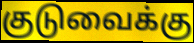
குடுவைக்கு